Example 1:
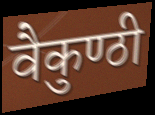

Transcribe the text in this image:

वैकुण्ठी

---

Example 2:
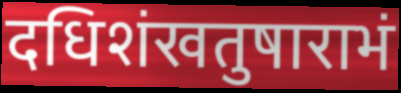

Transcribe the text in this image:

दधिशंखतुषाराभं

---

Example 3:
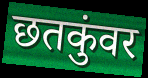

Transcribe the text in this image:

छतकुंवर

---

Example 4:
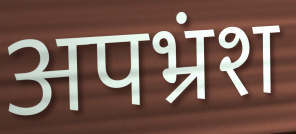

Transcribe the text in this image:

अपभ्रंश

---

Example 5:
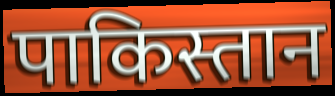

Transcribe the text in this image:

पाकिस्‍तान